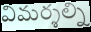
విమర్శల్ని